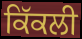
ਕਿੱਕਲੀ